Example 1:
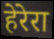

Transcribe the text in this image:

हेरेरा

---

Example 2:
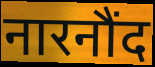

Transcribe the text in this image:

नारनौंद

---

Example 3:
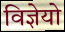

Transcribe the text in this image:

विज्ञेयो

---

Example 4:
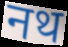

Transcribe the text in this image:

नथ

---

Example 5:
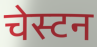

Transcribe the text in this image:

चेस्टन